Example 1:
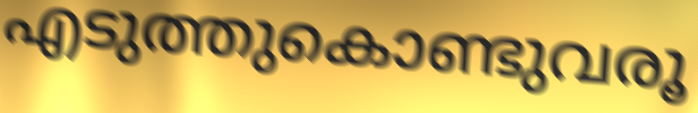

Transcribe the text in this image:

എടുത്തുകൊണ്ടുവരൂ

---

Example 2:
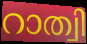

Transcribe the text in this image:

റാത്വി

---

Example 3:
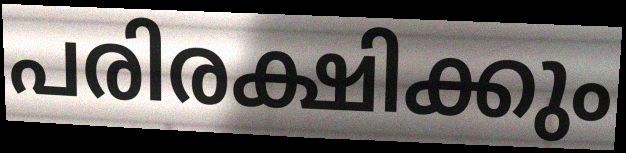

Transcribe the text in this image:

പരിരക്ഷിക്കും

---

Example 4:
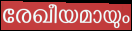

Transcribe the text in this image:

രേഖീയമായും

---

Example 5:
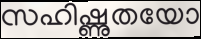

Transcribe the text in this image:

സഹിഷ്ണുതയോ